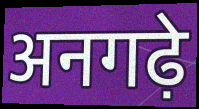
अनगढ़े